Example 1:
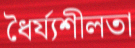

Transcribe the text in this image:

ধৈর্য্যশীলতা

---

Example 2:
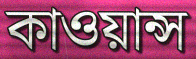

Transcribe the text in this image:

কাওয়ান্স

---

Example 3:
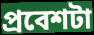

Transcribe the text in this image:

প্রবেশটা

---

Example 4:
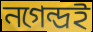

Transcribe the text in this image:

নগেন্দ্রই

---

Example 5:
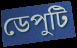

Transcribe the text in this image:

ডেপুটি